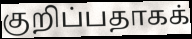
குறிப்பதாகக்